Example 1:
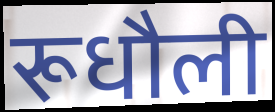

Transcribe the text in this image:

रूधौली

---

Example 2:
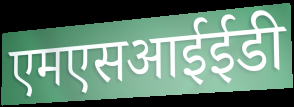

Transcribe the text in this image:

एमएसआईईडी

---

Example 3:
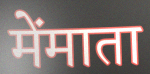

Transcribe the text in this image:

मेंमाता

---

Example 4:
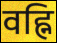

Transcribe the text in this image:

वह्नि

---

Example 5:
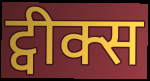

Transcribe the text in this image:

ट्वीक्स